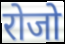
रोजो